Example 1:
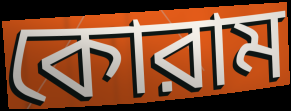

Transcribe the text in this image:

কোরাম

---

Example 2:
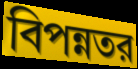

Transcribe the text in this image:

বিপন্নতর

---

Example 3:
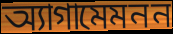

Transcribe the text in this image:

অ্যাগামেমনন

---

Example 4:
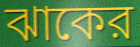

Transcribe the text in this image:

ঝাকের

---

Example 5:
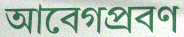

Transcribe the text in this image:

আবেগপ্রবণ